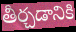
తీర్చడానికి